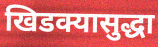
खिडक्यासुद्धा